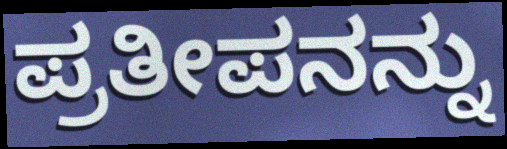
ಪ್ರತೀಪನನ್ನು